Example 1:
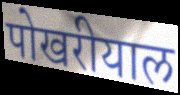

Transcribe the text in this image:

पोखरीयाल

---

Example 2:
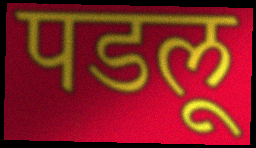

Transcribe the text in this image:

पडलू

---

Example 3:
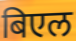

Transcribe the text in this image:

बिएल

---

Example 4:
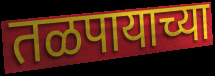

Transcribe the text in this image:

तळपायाच्या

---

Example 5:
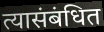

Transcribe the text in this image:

त्यासंबंधित